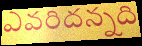
ఎవరిదన్నది